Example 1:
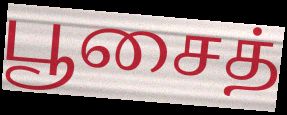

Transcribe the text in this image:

பூசைத்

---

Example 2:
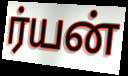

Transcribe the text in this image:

ர்யன்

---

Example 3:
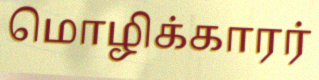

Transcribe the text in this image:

மொழிக்காரர்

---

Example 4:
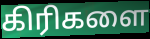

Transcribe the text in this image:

கிரிகளை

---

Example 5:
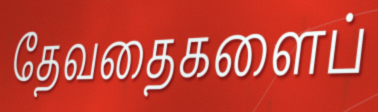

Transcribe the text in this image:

தேவதைகளைப்